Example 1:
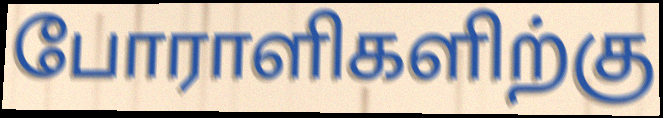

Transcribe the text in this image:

போராளிகளிற்கு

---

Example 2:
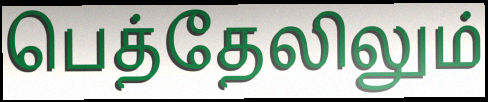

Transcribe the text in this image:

பெத்தேலிலும்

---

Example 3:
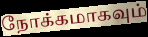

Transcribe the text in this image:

நோக்கமாகவும்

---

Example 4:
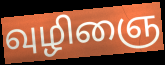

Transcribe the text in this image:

வுழிஞை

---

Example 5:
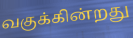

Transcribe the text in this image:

வகுக்கின்றது